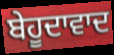
ਬੇਹੂਦਾਵਾਦ